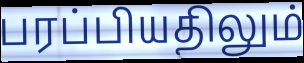
பரப்பியதிலும்